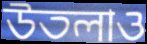
উতলাও